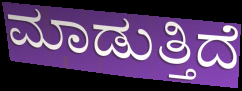
ಮಾಡುತ್ತಿದೆ